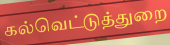
கல்வெட்டுத்துறை